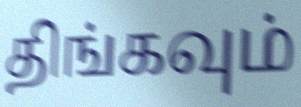
திங்கவும்